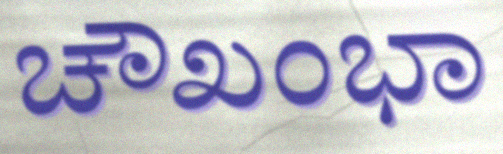
ಚೌಖಂಭಾ